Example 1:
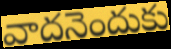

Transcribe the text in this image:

వాదనెందుకు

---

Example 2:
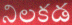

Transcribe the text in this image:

నిలకడ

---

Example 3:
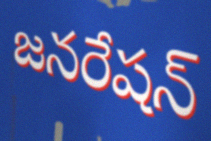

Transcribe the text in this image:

జనరేషన్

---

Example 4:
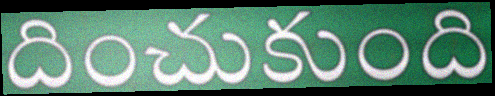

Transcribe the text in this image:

దించుకుంది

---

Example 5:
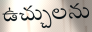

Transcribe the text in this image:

ఉచ్చులను